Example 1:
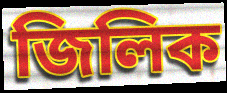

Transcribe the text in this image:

জিলিক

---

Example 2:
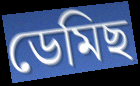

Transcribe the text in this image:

ডেমিছ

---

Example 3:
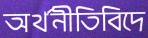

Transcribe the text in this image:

অৰ্থনীতিবিদে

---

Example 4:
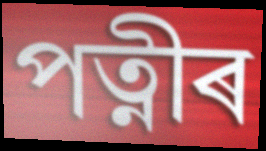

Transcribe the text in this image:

পত্নীৰ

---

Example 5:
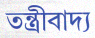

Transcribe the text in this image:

তন্ত্ৰীবাদ্য